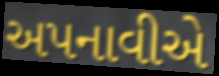
અપનાવીએ